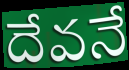
దేవనే